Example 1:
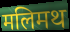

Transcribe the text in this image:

मलिमथ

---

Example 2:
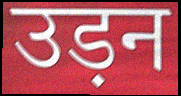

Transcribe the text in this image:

उड़न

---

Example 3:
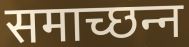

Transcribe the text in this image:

समाच्छन्न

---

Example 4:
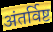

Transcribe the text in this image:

अंतर्विष्ट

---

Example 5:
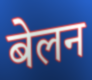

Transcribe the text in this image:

बेलन